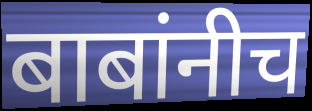
बाबांनीच